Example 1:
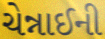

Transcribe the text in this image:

ચેન્નાઈની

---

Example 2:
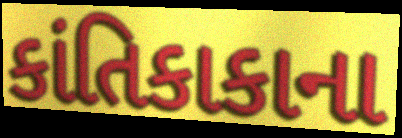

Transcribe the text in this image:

કાંતિકાકાના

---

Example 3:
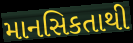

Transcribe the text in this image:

માનસિકતાથી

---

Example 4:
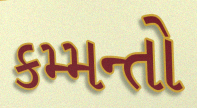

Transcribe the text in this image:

કમ્મન્તો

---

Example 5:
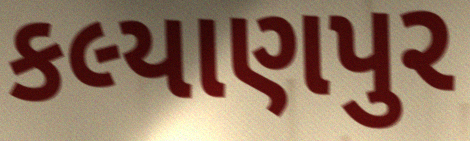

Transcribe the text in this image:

કલ્યાણપુર